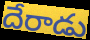
దేరాడు